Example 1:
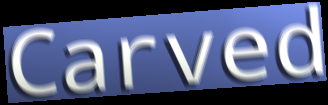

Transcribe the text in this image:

Carved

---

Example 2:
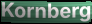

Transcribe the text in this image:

Kornberg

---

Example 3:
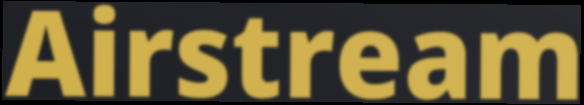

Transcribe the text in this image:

Airstream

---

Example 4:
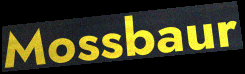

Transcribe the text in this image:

Mossbaur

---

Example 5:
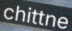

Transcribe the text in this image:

chittne